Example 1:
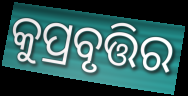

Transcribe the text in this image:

କୁପ୍ରବୃତ୍ତିର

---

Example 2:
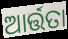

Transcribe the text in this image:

ଆର୍ତ୍ତତା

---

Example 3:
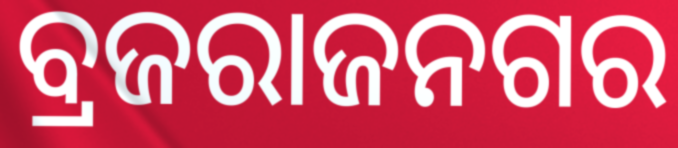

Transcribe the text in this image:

ବ୍ରଜରାଜନଗର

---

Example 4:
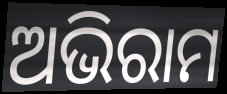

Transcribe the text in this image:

ଅଭିରାମ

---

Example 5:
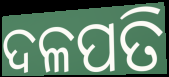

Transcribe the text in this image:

ଦଳପତି